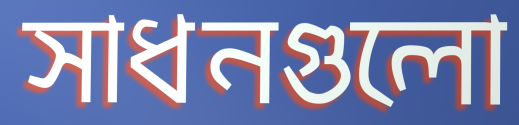
সাধনগুলো